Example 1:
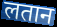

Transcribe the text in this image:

लतान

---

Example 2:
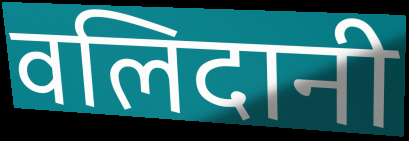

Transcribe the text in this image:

वलिदानी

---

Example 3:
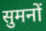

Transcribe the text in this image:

सुमनों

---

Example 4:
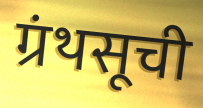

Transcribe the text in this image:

ग्रंथसूची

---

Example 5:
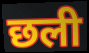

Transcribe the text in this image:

छली